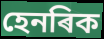
হেনৰিক